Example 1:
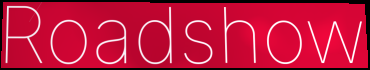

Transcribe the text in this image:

Roadshow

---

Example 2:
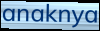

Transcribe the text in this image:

anaknya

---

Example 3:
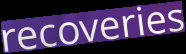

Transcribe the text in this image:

recoveries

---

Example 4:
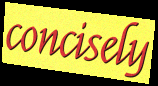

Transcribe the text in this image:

concisely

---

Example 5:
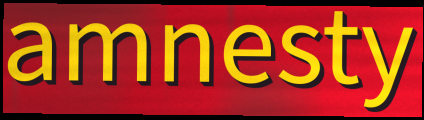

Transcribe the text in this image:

amnesty